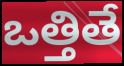
ఒత్తితే